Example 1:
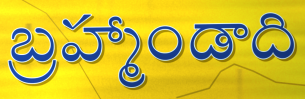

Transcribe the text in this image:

బ్రహ్మాండాది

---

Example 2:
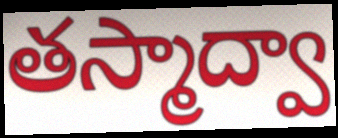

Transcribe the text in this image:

తస్మాద్వా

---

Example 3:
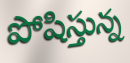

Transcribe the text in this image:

పోషిస్తున్న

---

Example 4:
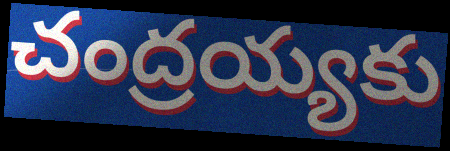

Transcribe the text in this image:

చంద్రయ్యకు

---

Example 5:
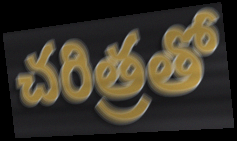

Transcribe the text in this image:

చరిత్రతో